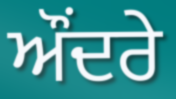
ਔਂਦਰੇ